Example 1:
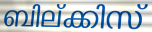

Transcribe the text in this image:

ബില്ക്കിസ്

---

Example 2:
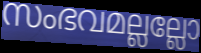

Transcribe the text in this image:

സംഭവമല്ലല്ലോ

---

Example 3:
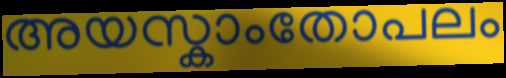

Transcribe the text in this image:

അയസ്കാംതോപലം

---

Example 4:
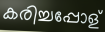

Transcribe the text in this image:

കരിച്ചപ്പോള്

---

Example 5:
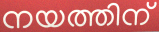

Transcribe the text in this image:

നയത്തിന്